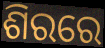
ଶିରରେ